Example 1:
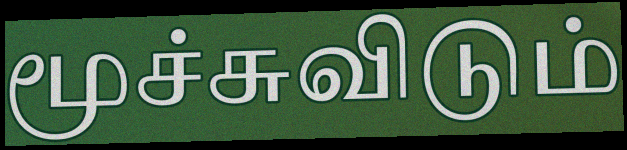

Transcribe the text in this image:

மூச்சுவிடும்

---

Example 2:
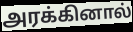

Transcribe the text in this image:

அரக்கினால்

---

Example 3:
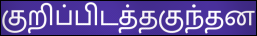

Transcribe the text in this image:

குறிப்பிடத்தகுந்தன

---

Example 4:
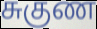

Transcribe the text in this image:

சுகுண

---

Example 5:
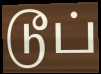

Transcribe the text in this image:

டூப்